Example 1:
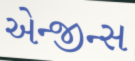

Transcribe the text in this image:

એન્જીન્સ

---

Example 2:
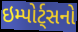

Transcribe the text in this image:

ઇમ્પોર્ટ્સનો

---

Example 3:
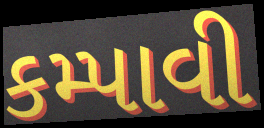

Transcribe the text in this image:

કમ્પાવી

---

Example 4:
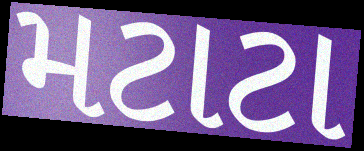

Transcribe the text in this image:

મટાટા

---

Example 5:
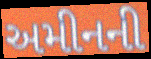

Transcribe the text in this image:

અમીનની